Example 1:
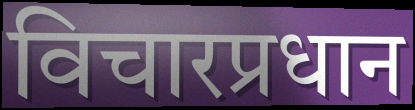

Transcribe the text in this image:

विचारप्रधान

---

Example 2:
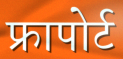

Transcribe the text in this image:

फ्रापोर्ट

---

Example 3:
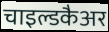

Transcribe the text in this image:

चाइल्डकैअर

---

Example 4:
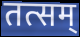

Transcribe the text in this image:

तत्सम्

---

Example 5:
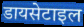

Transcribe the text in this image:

डायसेटाइल